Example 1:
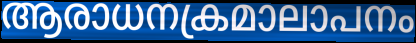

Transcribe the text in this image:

ആരാധനക്രമാലാപനം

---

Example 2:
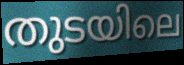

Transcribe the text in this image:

തുടയിലെ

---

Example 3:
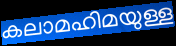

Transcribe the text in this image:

കലാമഹിമയുള്ള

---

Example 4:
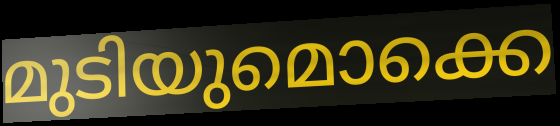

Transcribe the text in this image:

മുടിയുമൊക്കെ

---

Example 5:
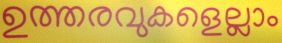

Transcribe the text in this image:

ഉത്തരവുകളെല്ലാം